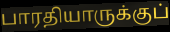
பாரதியாருக்குப்